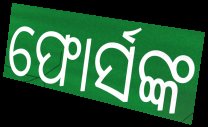
ଫୋର୍ସଙ୍କ